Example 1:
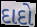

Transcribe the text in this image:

દાદો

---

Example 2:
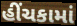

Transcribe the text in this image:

હીંચકામાં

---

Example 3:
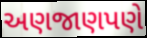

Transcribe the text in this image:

અણજાણપણે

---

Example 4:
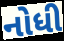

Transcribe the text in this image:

નોધી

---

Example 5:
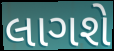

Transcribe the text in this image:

લાગશે